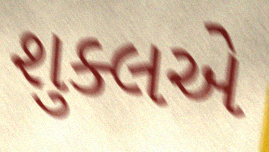
શુક્લએ